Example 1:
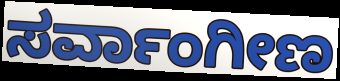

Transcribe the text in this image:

ಸರ್ವಾಂಗೀಣ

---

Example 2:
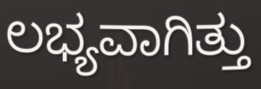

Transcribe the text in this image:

ಲಭ್ಯವಾಗಿತ್ತು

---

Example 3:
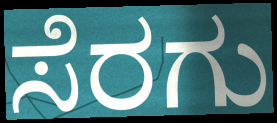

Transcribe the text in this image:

ಸೆರಗು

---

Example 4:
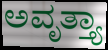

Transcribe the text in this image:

ಅವೃತ್ತ್ಯಾ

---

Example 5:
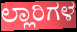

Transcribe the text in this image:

ಲ್ಲಾರಿಗಳ